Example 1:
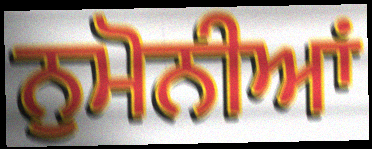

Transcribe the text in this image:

ਨੁਮੋਨੀਆਂ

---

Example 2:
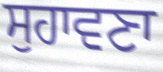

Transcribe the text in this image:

ਸੁਹਾਵਣਾ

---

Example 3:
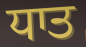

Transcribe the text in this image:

ਧਾਤ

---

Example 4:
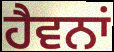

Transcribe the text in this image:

ਹੈਵਨਾਂ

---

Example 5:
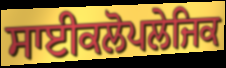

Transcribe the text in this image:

ਸਾਈਕਲੋਪਲੇਜਿਕ